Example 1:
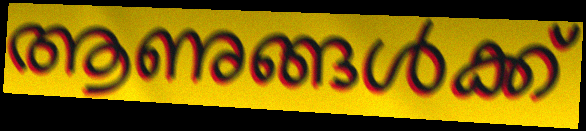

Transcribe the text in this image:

ആണുങ്ങൾക്ക്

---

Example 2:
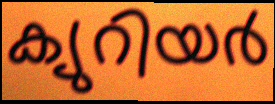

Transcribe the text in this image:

ക്യുറിയർ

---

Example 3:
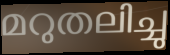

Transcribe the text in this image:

മറുതലിച്ചു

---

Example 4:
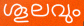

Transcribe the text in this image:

ശൂലവും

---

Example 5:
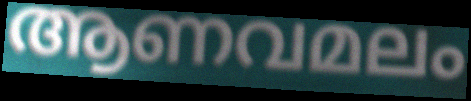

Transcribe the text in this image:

ആണവമലം